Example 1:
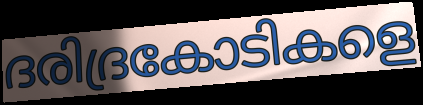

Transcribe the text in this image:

ദരിദ്രകോടികളെ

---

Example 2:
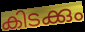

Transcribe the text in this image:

കിടക്കും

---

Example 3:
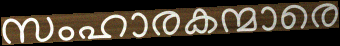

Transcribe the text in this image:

സംഹാരകന്മാരെ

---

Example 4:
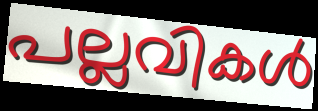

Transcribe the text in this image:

പല്ലവികൾ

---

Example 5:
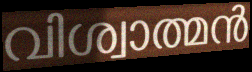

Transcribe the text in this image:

വിശ്വാത്മൻ